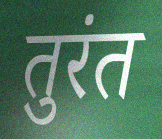
तुरंत